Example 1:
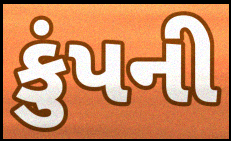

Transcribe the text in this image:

કુંપની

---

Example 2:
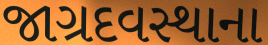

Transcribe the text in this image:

જાગ્રદવસ્થાના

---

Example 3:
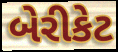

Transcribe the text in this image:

બેરીકેટ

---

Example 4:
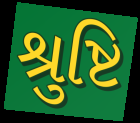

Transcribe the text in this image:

શ્રુષ્ટિ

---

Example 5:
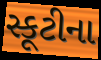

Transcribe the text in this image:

સ્કૂટીના